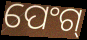
ପେଂଗ୍